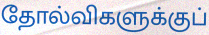
தோல்விகளுக்குப்